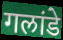
गलांडे